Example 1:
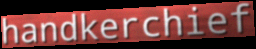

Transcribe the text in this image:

handkerchief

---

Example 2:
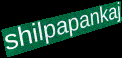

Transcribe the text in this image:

shilpapankaj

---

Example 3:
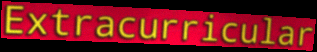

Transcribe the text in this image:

Extracurricular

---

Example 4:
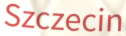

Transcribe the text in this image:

Szczecin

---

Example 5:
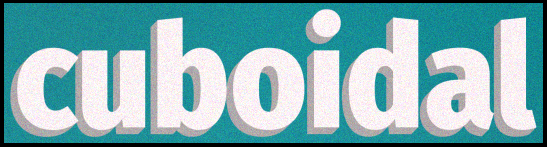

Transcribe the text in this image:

cuboidal